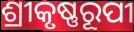
ଶ୍ରୀକୃଷ୍ଣରୂପୀ